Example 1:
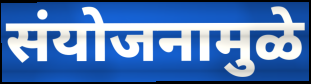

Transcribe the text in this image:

संयोजनामुळे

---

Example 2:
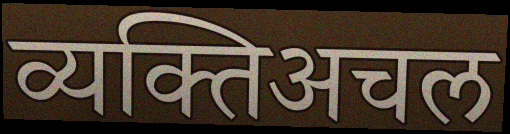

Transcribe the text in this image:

व्यक्तिअचल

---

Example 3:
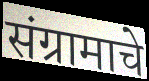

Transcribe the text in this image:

संग्रामाचे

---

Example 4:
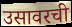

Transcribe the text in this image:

उसावरची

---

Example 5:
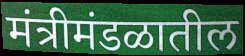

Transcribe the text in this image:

मंत्रीमंडळातील